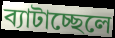
ব্যাটাচ্ছেলে